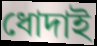
ধোদাই